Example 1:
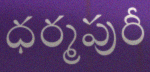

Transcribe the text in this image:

ధర్మపురీ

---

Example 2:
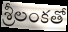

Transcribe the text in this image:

శ్రీలంకతో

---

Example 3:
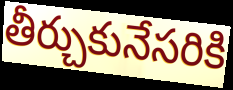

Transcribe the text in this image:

తీర్చుకునేసరికి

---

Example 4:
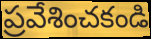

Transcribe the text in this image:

ప్రవేశించకండి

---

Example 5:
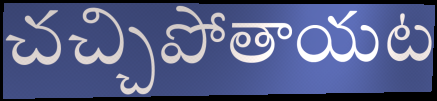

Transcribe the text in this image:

చచ్చిపోతాయట